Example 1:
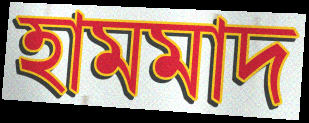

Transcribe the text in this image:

হামমাদ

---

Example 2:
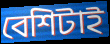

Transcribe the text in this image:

বেশিটাই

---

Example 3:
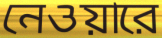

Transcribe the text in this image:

নেওয়ারে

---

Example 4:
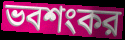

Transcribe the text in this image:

ভবশংকর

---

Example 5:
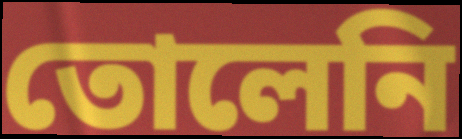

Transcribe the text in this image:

তোলেনি